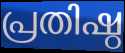
പ്രതിഷ്ഠ